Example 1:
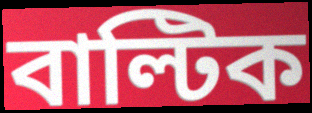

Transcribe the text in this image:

বাল্টিক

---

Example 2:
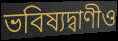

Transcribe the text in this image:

ভবিষ্যদ্বাণীও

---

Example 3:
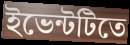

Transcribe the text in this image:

ইভেন্টটিতে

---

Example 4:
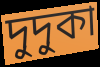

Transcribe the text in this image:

দুদুকা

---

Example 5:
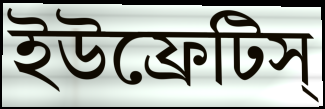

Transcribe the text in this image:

ইউফ্রেটিস্